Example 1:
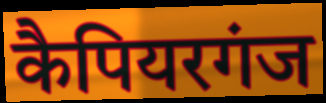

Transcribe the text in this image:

कैपियरगंज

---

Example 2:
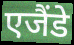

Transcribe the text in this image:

एजैंडे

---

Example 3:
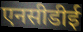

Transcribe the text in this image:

एनसीडीई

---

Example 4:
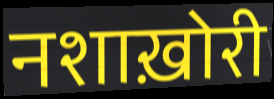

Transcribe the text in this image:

नशाख़ोरी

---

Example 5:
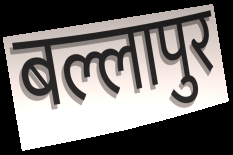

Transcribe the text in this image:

बल्लापुर